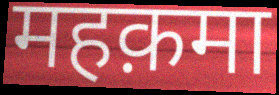
महक़मा